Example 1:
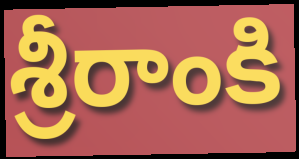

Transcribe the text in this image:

శ్రీరాంకి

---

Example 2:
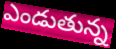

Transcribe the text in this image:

ఎండుతున్న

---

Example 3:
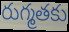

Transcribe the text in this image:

రుగ్మతకు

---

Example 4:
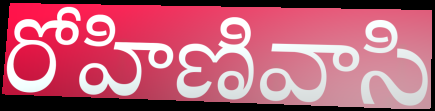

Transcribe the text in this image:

రోహిణివాసి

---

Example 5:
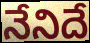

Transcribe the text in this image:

నేనిదే